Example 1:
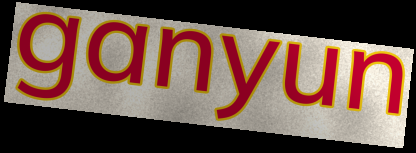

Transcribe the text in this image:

ganyun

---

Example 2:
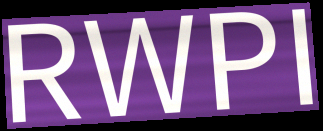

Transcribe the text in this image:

RWPI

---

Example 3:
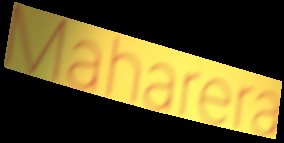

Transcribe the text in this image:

Maharera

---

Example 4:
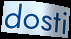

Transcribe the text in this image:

dosti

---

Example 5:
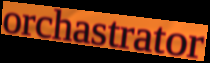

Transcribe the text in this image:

orchastrator